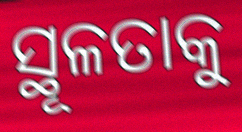
ସ୍ଥୂଳତାକୁ